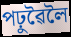
পঢ়ুৱৈলৈ